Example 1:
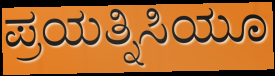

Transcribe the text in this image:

ಪ್ರಯತ್ನಿಸಿಯೂ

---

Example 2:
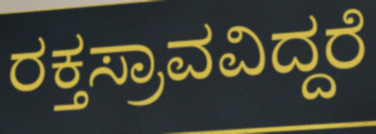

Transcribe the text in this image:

ರಕ್ತಸ್ರಾವವಿದ್ದರೆ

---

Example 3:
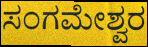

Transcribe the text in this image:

ಸಂಗಮೇಶ್ವರ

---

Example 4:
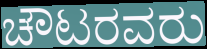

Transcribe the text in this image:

ಚೌಟರವರು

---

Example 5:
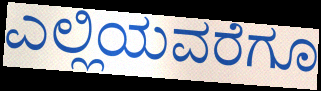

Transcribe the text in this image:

ಎಲ್ಲಿಯವರೆಗೂ